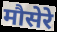
मौसेरे